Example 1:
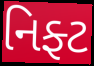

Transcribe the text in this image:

નિફ્ટ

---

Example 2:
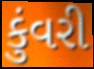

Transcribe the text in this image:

કુંવરી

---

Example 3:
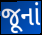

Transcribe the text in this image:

જૂનાં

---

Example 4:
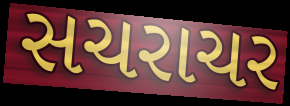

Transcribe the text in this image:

સચરાચર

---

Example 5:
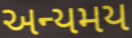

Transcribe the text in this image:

અન્યમય